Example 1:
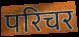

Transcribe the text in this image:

परिचर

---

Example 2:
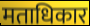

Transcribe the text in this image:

मताधिकार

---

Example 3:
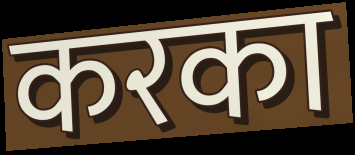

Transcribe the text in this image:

करका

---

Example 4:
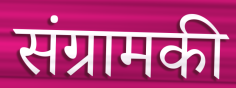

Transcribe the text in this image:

संग्रामकी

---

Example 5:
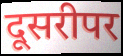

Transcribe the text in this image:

दूसरीपर